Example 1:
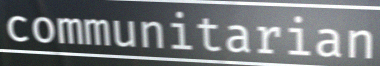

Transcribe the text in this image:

communitarian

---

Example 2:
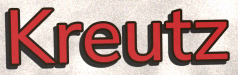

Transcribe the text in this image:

Kreutz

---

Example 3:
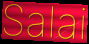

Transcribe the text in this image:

Salai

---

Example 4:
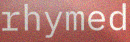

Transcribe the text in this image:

rhymed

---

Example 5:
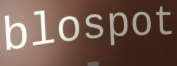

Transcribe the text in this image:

blospot